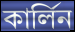
কার্লিন